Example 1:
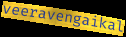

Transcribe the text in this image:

veeravengaikal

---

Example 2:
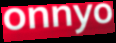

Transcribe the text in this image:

onnyo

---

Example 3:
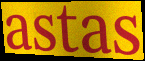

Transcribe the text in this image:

astas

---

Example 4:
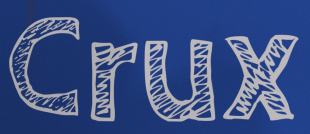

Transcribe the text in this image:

Crux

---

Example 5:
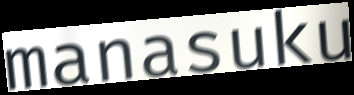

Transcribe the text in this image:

manasuku